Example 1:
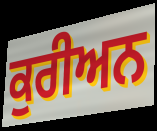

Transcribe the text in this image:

ਕੁਰੀਅਨ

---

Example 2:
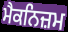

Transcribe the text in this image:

ਮੈਕਨਿਜ਼ਮ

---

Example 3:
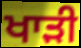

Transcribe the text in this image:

ਖਾੜੀ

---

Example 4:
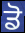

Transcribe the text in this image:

ਡੋ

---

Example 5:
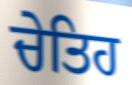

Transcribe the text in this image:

ਚੇਤਿਹ